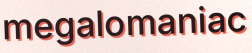
megalomaniac